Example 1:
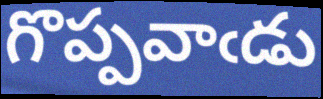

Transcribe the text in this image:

గొప్పవాఁడు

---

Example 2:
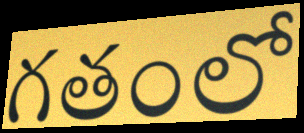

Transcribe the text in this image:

గతంలో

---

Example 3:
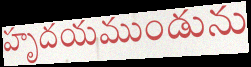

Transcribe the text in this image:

హృదయముండును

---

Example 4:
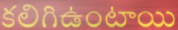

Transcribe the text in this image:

కలిగిఉంటాయి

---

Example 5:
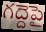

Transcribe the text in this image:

గద్దెపై